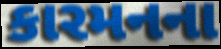
કારમનના